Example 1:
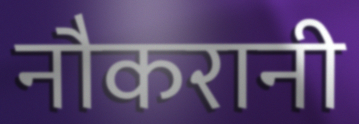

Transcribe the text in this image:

नौकरानी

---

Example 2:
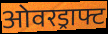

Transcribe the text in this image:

ओवरड्राफ्ट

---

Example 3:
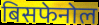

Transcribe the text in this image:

बिसफेनोल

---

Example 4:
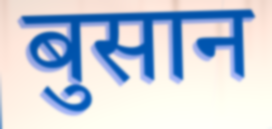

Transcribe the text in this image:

बुसान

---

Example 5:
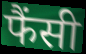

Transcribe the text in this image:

फैंसी